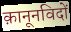
क़ानूनविदों